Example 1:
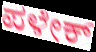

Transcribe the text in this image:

ಪಳೇಕ್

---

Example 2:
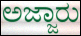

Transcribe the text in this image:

ಅಜ್ಜಾರು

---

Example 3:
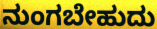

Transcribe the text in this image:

ನುಂಗಬೇಹುದು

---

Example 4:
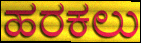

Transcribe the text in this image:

ಹರಕಲು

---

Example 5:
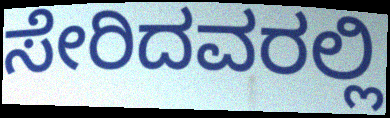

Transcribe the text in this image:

ಸೇರಿದವರಲ್ಲಿ